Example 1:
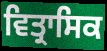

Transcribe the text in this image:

ਵਿਤ੍ਰਾਸਿਕ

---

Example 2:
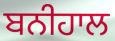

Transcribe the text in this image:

ਬਨੀਹਾਲ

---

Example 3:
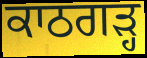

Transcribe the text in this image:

ਕਾਠਗਡ਼੍ਹ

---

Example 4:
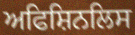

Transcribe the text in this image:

ਅਫਿਸ਼ਿਨਲਿਸ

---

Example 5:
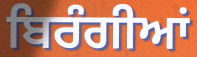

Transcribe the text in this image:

ਬਿਰੰਗੀਆਂ